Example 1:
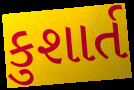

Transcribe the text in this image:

કુશાર્ત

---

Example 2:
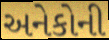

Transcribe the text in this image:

અનેકોની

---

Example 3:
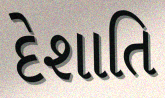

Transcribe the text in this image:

દેશાતિ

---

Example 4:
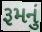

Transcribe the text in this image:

રૂમનું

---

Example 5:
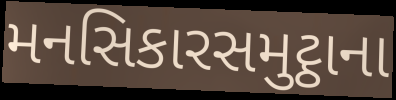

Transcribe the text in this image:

મનસિકારસમુટ્ઠાના